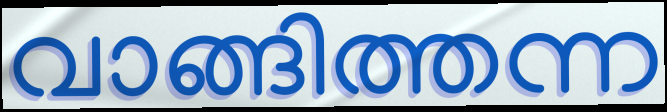
വാങ്ങിത്തന്ന